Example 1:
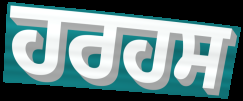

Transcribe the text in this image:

ਹਰਹਸ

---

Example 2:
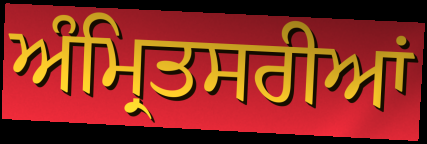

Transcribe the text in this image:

ਅੰਮ੍ਰਿਤਸਰੀਆਂ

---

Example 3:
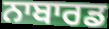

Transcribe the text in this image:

ਨਾਬਾਰਡ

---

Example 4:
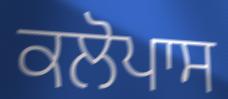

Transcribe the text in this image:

ਕਲੋਪਾਸ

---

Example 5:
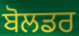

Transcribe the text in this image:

ਬੋਲਡਰ